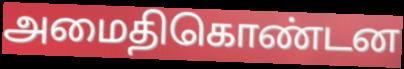
அமைதிகொண்டன